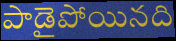
పాడైపోయినది